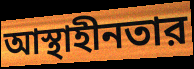
আস্থাহীনতার